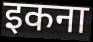
इकना